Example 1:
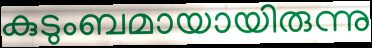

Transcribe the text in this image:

കുടുംബമായായിരുന്നു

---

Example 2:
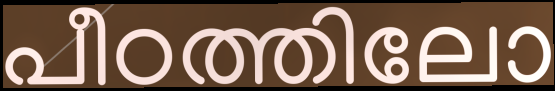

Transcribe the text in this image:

പീഠത്തിലോ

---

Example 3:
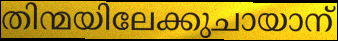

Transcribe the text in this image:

തിന്മയിലേക്കുചായാന്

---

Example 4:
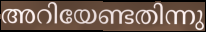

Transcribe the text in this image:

അറിയേണ്ടതിന്നു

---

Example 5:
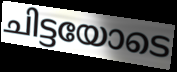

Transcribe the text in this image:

ചിട്ടയോടെ